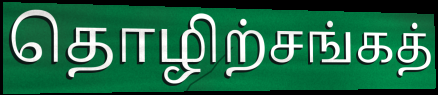
தொழிற்சங்கத்